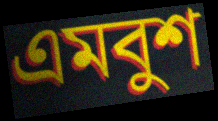
এমবুশ